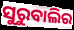
ସୁରୁବାଲିର